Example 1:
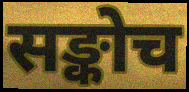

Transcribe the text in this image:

सङ्कोच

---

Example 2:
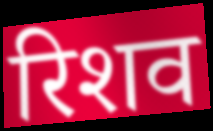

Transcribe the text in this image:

रिशव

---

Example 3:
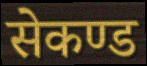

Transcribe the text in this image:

सेकण्ड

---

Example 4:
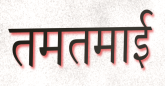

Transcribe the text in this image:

तमतमाई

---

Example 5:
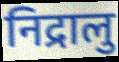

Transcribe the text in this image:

निद्रालु